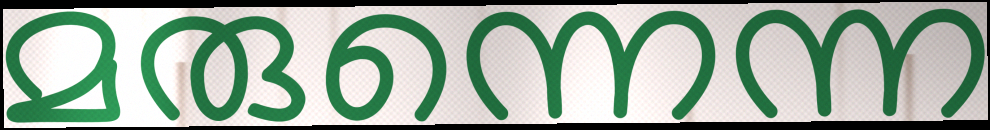
മരുന്നെന്ന